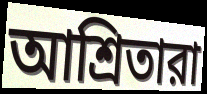
আশ্রিতারা